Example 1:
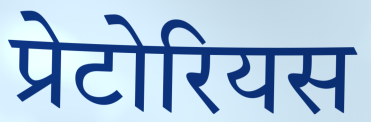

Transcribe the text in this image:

प्रेटोरियस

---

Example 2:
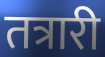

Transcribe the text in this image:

तत्रारी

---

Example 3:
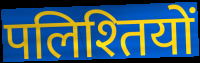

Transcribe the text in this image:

पलिश्‍तियों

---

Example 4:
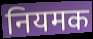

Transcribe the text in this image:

नियमक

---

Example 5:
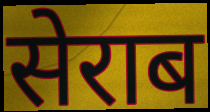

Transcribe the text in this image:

सेराब